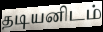
தடியனிடம்